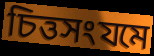
চিত্তসংযমে